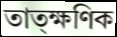
তাত্ক্ষণিক